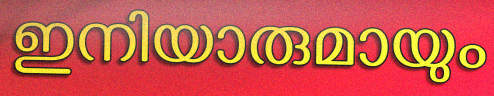
ഇനിയാരുമായും